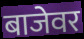
बाजेवर